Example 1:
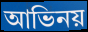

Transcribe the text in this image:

আভিনয়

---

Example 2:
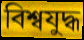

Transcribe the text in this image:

বিশ্বযুদ্ধ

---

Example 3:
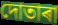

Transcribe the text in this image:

দোতাৰা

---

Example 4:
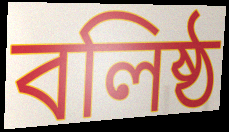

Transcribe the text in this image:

বলিষ্ঠ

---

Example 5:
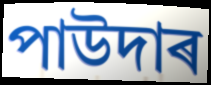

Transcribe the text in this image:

পাউদাৰ